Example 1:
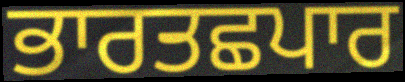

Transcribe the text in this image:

ਭਾਰਤਛਪਾਰ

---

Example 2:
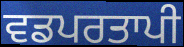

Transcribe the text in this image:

ਵਡਪਰਤਾਪੀ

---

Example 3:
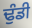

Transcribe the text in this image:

ਢੁੰਡੀ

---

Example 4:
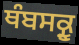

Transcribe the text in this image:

ਥੰਬਸਕ੍ਰੂ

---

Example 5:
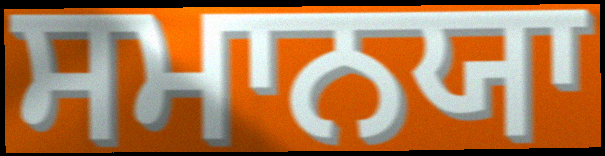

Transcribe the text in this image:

ਸਮਾਨਯਾ